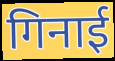
गिनाई